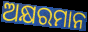
ଅକ୍ଷରମାନ